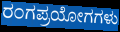
ರಂಗಪ್ರಯೋಗಗಳು